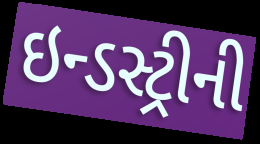
ઇન્ડસ્ટ્રીની